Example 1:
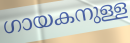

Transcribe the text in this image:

ഗായകനുള്ള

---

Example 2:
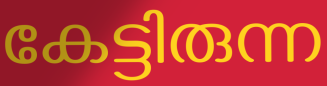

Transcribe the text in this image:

കേട്ടിരുന്ന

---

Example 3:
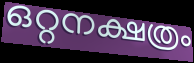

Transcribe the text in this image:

ഒറ്റനക്ഷത്രം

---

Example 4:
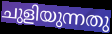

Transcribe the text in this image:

ചുളിയുന്നതു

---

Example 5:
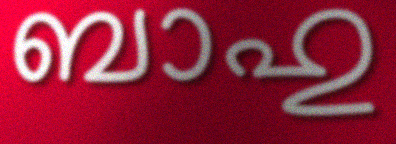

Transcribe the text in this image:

ബാഹു